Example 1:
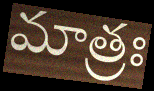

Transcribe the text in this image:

మాత్రః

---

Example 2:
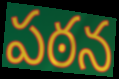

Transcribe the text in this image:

పఠన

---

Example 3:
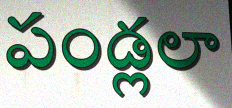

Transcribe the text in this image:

పండ్లలా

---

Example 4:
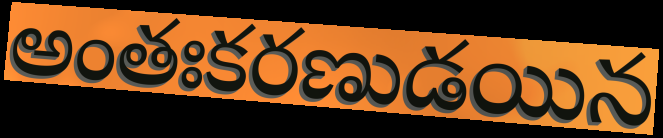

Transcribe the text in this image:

అంతఃకరణుడయిన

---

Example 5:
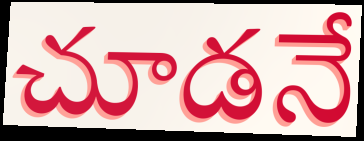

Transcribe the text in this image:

చూడనే